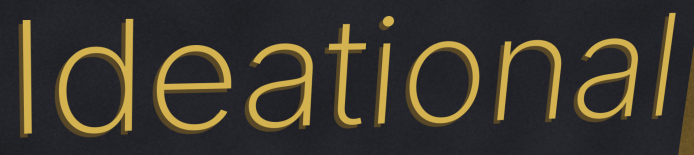
Ideational